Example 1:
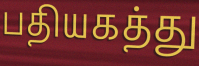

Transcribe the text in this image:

பதியகத்து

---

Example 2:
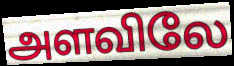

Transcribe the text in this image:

அளவிலே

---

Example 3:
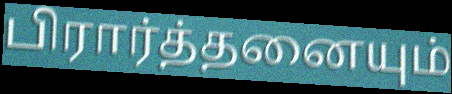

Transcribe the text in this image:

பிரார்த்தனையும்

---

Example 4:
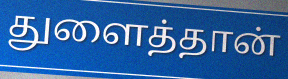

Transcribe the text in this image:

துளைத்தான்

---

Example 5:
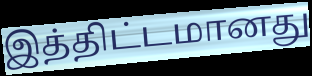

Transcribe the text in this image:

இத்திட்டமானது